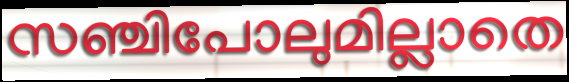
സഞ്ചിപോലുമില്ലാതെ